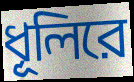
ধূলিরে